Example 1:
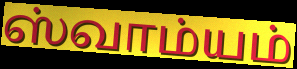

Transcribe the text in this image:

ஸ்வாம்யம்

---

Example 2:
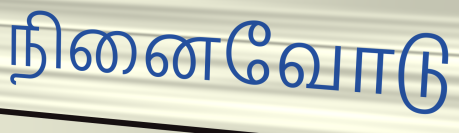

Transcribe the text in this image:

நினைவோடு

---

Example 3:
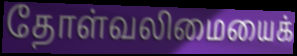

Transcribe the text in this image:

தோள்வலிமையைக்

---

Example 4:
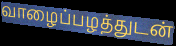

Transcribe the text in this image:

வாழைப்பழத்துடன்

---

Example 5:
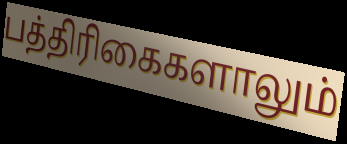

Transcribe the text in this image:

பத்திரிகைகளாலும்